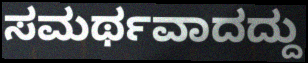
ಸಮರ್ಥವಾದದ್ದು